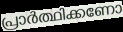
പ്രാർത്ഥിക്കണോ